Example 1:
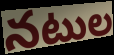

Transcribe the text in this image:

నటుల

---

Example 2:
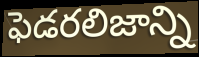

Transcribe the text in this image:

ఫెడరలిజాన్ని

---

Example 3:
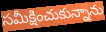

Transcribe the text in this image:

సమీక్షించుకున్నాను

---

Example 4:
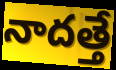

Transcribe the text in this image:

నాదత్తే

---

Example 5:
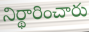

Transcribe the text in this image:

నిర్థారించారు